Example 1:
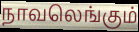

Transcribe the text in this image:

நாவலெங்கும்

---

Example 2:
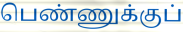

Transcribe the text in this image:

பெண்ணுக்குப்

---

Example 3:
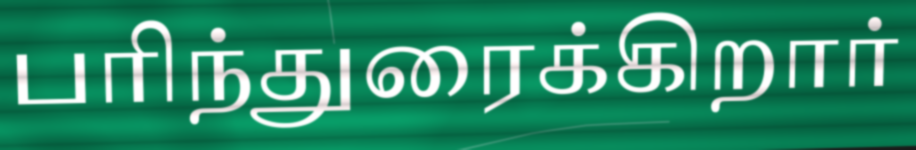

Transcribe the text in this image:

பரிந்துரைக்கிறார்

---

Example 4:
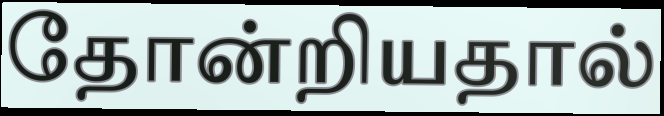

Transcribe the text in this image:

தோன்றியதால்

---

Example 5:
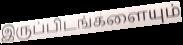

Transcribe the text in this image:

இருப்பிடங்களையும்